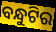
ବନ୍ଧୁଟିର